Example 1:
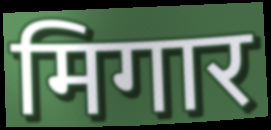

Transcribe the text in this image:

मिगार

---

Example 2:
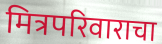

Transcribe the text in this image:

मित्रपरिवाराचा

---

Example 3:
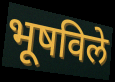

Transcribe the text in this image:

भूषविले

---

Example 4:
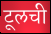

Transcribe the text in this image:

टूलची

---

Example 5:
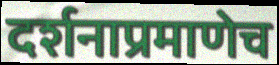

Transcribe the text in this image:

दर्शनाप्रमाणेच